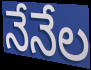
నేనేల